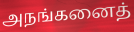
அநங்கனைத்